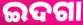
ଇଦଗା